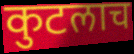
कुटलाच